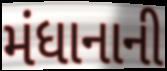
મંધાનાની